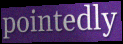
pointedly